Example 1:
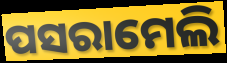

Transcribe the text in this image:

ପସରାମେଲି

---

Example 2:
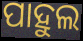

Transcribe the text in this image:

ପାହୁଲ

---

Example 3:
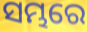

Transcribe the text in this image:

ସମ୍ଭରେ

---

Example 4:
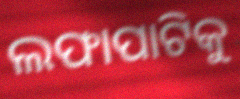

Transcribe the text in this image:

ଲଫାପାଟିକୁ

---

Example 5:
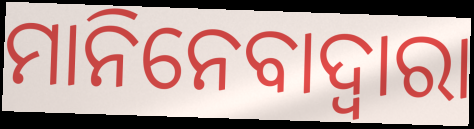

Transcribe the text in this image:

ମାନିନେବାଦ୍ୱାରା